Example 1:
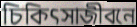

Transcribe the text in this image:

চিকিৎসাজীবনে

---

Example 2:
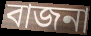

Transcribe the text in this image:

বাজনা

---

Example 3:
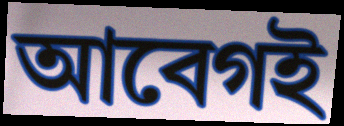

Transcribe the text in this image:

আবেগই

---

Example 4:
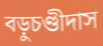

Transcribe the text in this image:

বড়ুচণ্ডীদাস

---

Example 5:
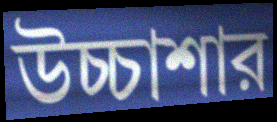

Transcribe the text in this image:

উচ্চাশার